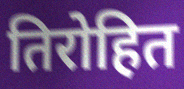
तिरोहित